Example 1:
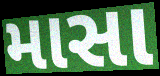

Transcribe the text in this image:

માસા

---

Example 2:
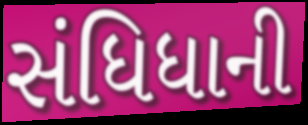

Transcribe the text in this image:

સંધિધાની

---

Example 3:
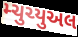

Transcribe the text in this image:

મ્ચુચ્યુઅલ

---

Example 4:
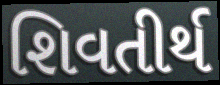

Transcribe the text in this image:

શિવતીર્થ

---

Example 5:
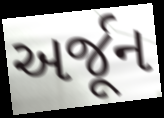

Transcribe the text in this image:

અર્જૂન